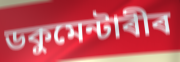
ডকুমেন্টাৰীৰ